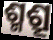
ଶ୍ମଶ୍ରୂ